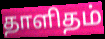
தாளிதம்